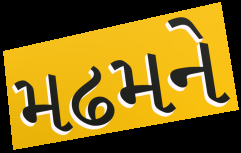
મઢમને